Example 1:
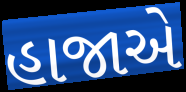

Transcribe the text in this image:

હાજાએ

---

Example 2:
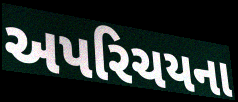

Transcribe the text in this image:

અપરિચયના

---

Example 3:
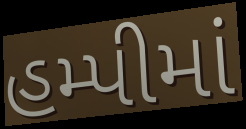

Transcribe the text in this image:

હમ્પીમાં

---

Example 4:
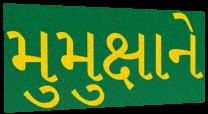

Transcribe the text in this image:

મુમુક્ષાને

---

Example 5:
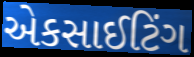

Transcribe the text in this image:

એકસાઈટિંગ